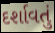
દર્શાવતું